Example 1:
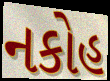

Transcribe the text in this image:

નકોહ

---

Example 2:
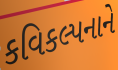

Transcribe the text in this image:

કવિકલ્પનાને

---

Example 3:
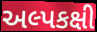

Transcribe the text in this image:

અલ્પકક્ષી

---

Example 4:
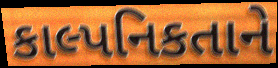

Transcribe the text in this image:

કાલ્પનિકતાને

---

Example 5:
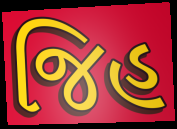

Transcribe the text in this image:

જિહ